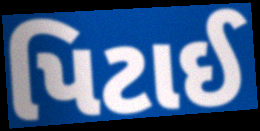
પિટાઈ